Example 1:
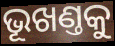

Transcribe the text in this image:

ଭୂଖଣ୍ତକୁ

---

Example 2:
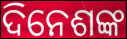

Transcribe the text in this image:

ଦିନେଶଙ୍କ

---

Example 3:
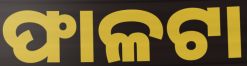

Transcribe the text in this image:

ଫାଳଟା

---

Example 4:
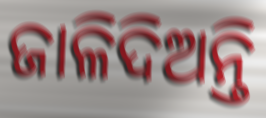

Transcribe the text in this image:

ଜାଳିଦିଅନ୍ତି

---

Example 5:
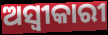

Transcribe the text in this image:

ଅସ୍ୱୀକାରୀ